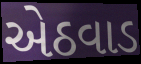
એઠવાડ